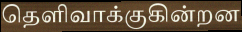
தெளிவாக்குகின்றன